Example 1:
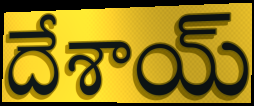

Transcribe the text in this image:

దేశాయ్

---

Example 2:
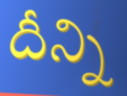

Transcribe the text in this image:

దీన్ని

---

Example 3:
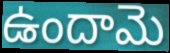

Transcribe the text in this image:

ఉందామె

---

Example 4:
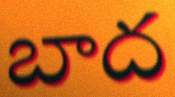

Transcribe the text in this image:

బాద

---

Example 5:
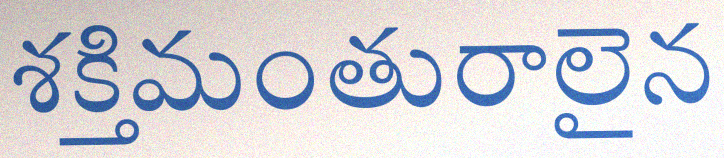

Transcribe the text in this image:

శక్తిమంతురాలైన